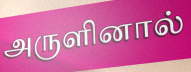
அருளினால்